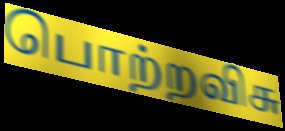
பொற்றவிசு